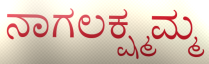
ನಾಗಲಕ್ಷ್ಮಮ್ಮ